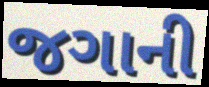
જગાની